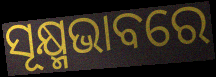
ସୂକ୍ଷ୍ମଭାବରେ